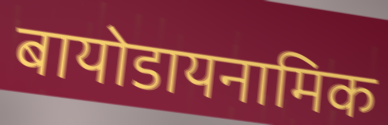
बायोडायनामिक